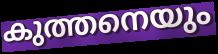
കുത്തനെയും